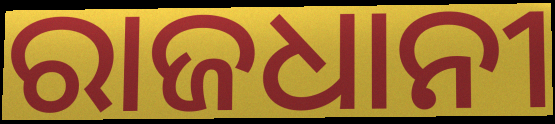
ରାଜଧାନୀ